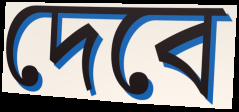
দেবে